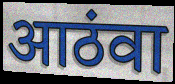
आठंवा